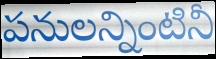
పనులన్నింటినీ